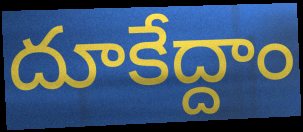
దూకేద్దాం